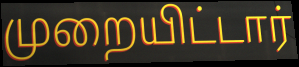
முறையிட்டார்